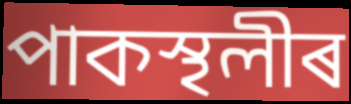
পাকস্থলীৰ